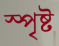
স্পৃষ্ট